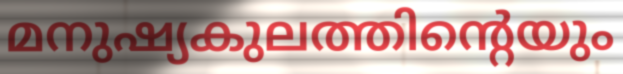
മനുഷ്യകുലത്തിന്റെയും